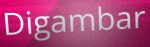
Digambar